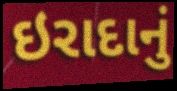
ઇરાદાનું